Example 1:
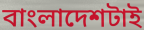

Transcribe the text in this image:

বাংলাদেশটাই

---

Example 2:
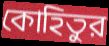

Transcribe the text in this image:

কোহিতুর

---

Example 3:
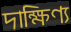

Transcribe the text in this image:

দাক্ষিণ্য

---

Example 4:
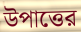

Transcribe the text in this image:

উপাত্তের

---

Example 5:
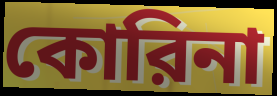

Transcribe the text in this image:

কোরিনা